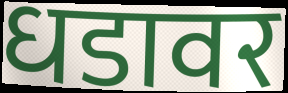
धडावर